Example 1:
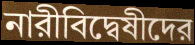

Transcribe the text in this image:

নারীবিদ্বেষীদের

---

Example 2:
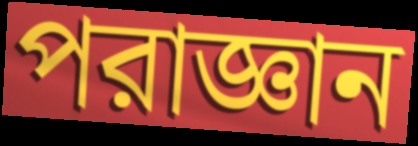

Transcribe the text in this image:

পরাজ্ঞান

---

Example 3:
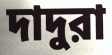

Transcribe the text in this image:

দাদুরা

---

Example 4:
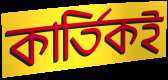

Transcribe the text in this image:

কার্তিকই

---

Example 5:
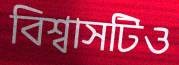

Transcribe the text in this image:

বিশ্বাসটিও